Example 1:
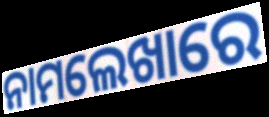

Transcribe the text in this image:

ନାମଲେଖାରେ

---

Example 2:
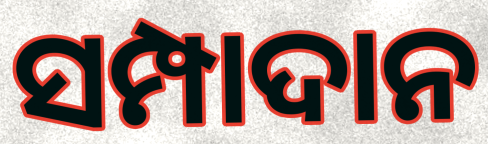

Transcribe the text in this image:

ସମ୍ପାଦାନ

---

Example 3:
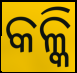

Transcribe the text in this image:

କଳ୍କି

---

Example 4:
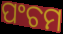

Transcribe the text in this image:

ପଂଚମ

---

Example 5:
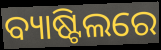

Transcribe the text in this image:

ବ୍ୟାଷ୍ଟିଲରେ